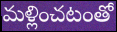
మళ్లించటంతో